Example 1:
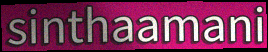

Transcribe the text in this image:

sinthaamani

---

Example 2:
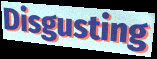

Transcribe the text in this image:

Disgusting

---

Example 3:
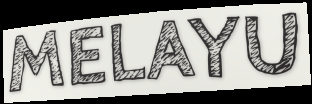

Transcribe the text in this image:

MELAYU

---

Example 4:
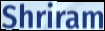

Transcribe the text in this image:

Shriram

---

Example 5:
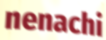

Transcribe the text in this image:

nenachi